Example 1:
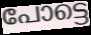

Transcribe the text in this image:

പോട്ടെ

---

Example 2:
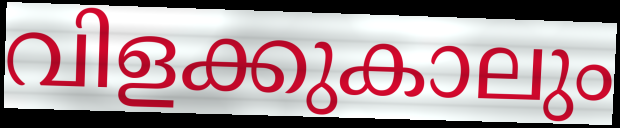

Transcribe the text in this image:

വിളക്കുകാലും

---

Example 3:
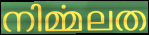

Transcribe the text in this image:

നിൎമ്മലത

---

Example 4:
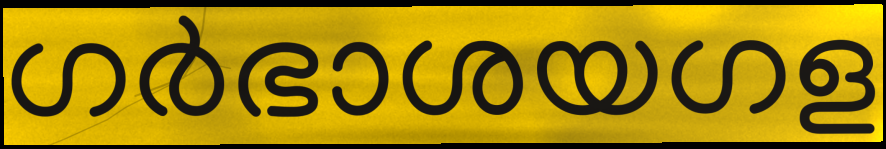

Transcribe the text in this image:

ഗർഭാശയഗള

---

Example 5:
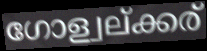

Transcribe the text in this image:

ഗോള്വല്ക്കര്